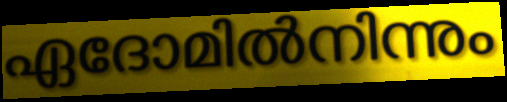
ഏദോമിൽനിന്നും